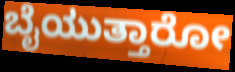
ಬೈಯುತ್ತಾರೋ